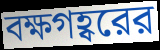
বক্ষগহ্বরের